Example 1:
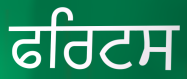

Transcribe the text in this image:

ਫਰਿਟਸ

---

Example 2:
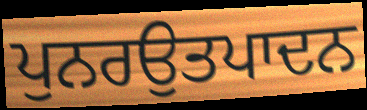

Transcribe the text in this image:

ਪੁਨਰਉਤਪਾਦਨ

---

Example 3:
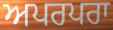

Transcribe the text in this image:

ਅਪਰਪਰਾ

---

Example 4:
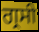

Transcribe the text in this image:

ਗ੍ਰਸੀ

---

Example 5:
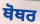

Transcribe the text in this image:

ਥੋਥਰ